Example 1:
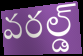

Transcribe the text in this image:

వరల్డ్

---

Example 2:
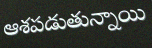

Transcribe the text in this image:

ఆశపడుతున్నాయి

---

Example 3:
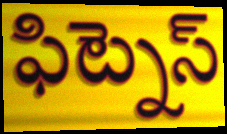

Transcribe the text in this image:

ఫిట్నెస్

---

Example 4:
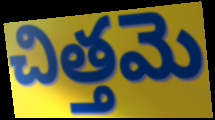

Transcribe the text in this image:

చిత్తమె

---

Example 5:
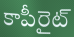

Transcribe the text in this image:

కాపీరైట్